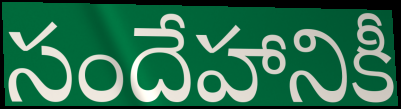
సందేహానికీ